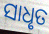
ସାଧୃତ